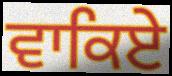
ਵਾਕਿਏ